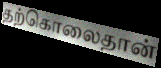
தற்கொலைதான்